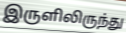
இருளிலிருந்து